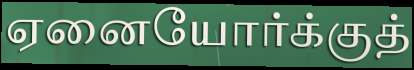
ஏனையோர்க்குத்